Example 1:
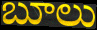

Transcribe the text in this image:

బూలు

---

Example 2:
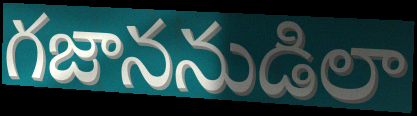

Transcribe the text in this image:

గజాననుడిలా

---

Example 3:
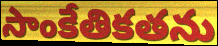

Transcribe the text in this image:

సాంకేతికతను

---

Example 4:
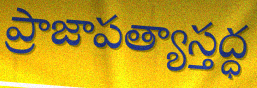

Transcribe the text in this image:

ప్రాజాపత్యాస్తద్ధ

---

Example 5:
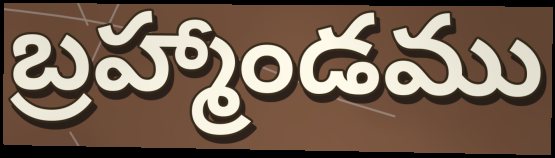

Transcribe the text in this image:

బ్రహ్మాండము